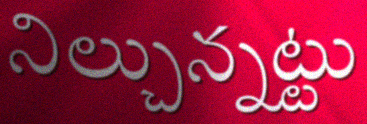
నిల్చున్నట్టు